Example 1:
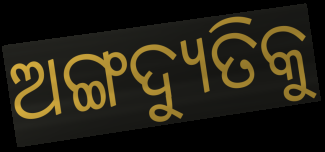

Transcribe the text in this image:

ଅଙ୍ଗଦ୍ୟୁତିକୁ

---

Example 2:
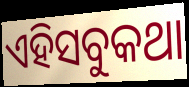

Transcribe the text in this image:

ଏହିସବୁକଥା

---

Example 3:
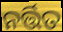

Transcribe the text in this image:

ନର୍ତ୍ତିତ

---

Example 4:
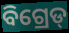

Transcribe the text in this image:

ବିଗ୍ରେଡ୍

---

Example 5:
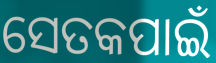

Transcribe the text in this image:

ସେତକପାଇଁ